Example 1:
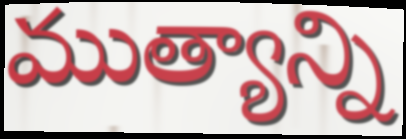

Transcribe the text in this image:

ముత్యాన్ని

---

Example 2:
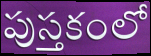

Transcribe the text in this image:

పుస్తకంలో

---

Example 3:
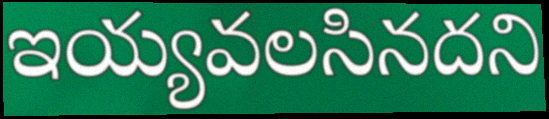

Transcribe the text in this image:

ఇయ్యవలసినదని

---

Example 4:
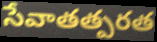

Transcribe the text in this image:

సేవాతత్పరత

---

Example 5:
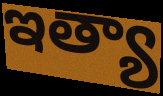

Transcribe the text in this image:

ఇత్యా